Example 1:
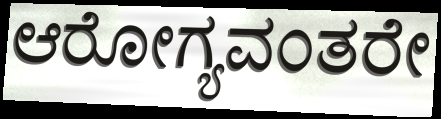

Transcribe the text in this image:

ಆರೋಗ್ಯವಂತರೇ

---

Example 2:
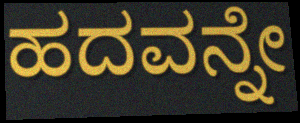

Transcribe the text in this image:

ಹದವನ್ನೇ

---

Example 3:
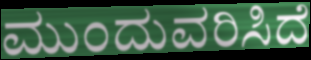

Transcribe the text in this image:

ಮುಂದುವರಿಸಿದೆ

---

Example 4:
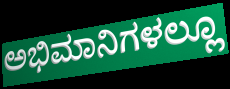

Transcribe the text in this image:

ಅಭಿಮಾನಿಗಳಲ್ಲೂ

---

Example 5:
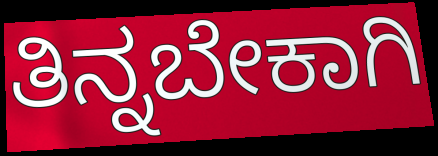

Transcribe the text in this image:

ತಿನ್ನಬೇಕಾಗಿ